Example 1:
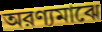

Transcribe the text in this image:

অরণ্যমাঝে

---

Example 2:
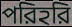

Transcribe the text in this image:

পরিহরি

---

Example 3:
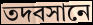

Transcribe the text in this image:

তদবসানে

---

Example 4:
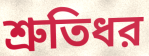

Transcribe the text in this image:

শ্রুতিধর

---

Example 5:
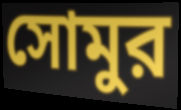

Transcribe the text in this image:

সোমুর